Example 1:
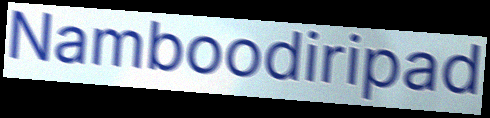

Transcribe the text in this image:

Namboodiripad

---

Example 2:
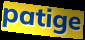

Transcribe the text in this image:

patige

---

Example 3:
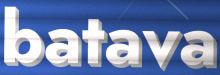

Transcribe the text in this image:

batava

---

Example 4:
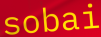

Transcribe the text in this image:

sobai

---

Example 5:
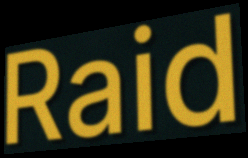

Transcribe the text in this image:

Raid